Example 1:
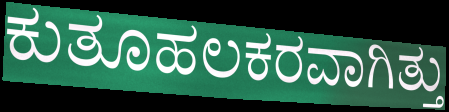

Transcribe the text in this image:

ಕುತೂಹಲಕರವಾಗಿತ್ತು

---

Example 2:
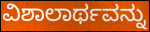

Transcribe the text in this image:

ವಿಶಾಲಾರ್ಥವನ್ನು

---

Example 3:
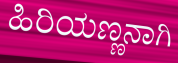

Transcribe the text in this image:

ಹಿರಿಯಣ್ಣನಾಗಿ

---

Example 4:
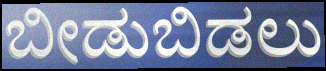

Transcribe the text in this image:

ಬೀಡುಬಿಡಲು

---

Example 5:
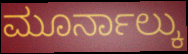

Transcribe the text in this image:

ಮೂರ್ನಾಲ್ಕು